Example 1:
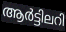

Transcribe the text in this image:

ആർട്ടിലറി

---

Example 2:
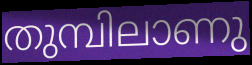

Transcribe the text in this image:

തുമ്പിലാണു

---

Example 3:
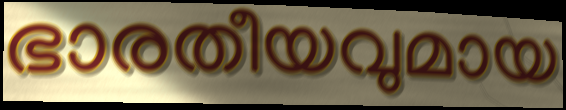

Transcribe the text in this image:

ഭാരതീയവുമായ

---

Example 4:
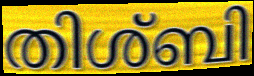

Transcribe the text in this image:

തിശ്ബി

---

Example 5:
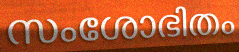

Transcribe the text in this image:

സംശോഭിതം